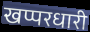
खप्परधारी